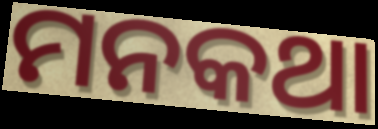
ମନକଥା